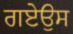
ਗਏਉਸ